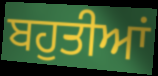
ਬਹੁਤੀਆਂ